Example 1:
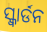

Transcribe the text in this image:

ସ୍କ୍ବାର୍ଡନ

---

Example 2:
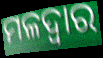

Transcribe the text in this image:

ମଳଦ୍ୱାର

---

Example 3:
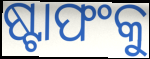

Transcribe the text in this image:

ଷ୍ଟାଫଂକୁ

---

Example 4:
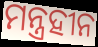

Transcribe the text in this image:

ମନ୍ତ୍ରହୀନ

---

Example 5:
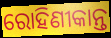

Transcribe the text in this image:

ରୋହିଣୀକାନ୍ତ